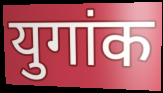
युगांक